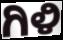
ಗಿಳಿ